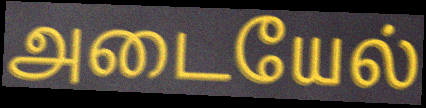
அடையேல்